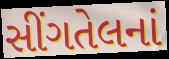
સીંગતેલનાં